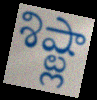
శిష్ట్లా